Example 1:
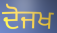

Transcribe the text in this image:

ਦੋਜਖ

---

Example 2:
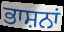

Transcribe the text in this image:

ਭਾਸ਼ਨਾਂ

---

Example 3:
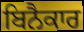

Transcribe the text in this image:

ਬਿਨੈਕਾਰ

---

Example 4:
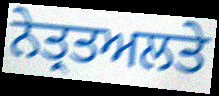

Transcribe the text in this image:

ਨੇਤ੍ਰਤਅਲਤੇ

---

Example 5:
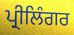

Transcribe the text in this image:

ਪ੍ਰੀਲਿੰਗਰ